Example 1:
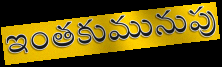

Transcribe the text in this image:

ఇంతకుమునుపు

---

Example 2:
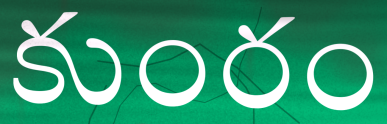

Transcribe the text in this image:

కుంరం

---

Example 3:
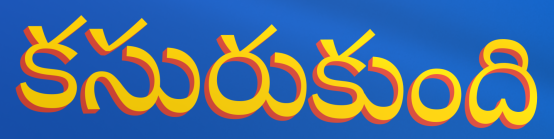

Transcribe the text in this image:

కసురుకుంది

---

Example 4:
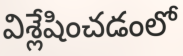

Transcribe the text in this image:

విశ్లేషించడంలో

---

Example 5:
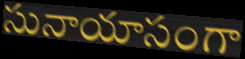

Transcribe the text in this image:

సునాయాసంగా